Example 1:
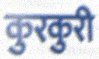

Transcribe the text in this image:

कुरकुरी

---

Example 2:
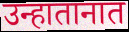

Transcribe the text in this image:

उन्हातानात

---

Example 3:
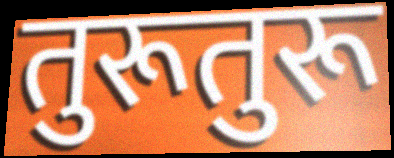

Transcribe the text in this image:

तुरूतुरू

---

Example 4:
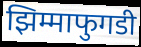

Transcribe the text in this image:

झिम्माफुगडी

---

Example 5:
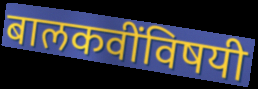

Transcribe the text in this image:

बालकवींविषयी